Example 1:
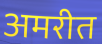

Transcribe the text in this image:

अमरीत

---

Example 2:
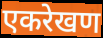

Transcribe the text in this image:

एकरेखण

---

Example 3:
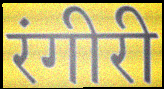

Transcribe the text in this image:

रंगीरी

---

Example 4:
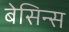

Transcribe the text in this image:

बेसिन्स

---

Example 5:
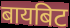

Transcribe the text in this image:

बायबिट